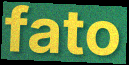
fato